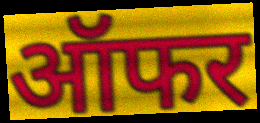
ऑफर